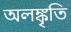
অলঙ্কৃতি